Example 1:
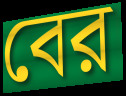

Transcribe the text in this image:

বের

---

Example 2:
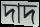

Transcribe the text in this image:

দাদ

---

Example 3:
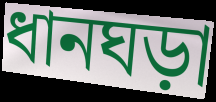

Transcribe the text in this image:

ধানঘড়া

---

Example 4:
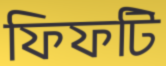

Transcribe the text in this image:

ফিফটি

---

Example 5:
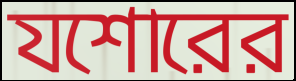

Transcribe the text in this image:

যশোরের